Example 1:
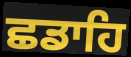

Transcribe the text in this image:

ਛਡਾਹਿ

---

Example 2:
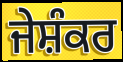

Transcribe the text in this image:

ਜੇਸ਼ੰਕਰ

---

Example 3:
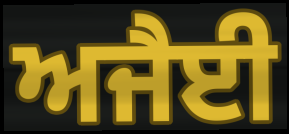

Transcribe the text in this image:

ਅਜੈਈ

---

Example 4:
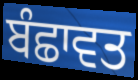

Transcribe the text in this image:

ਬੰਛਾਵਤ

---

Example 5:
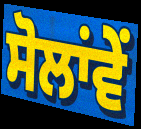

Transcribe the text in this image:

ਸੋਲਾਂਵੇਂ